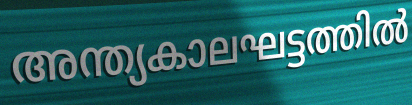
അന്ത്യകാലഘട്ടത്തിൽ